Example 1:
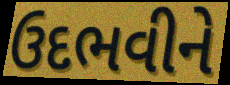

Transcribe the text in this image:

ઉદભવીને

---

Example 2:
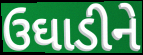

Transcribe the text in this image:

ઉઘાડીને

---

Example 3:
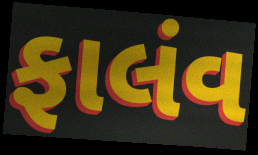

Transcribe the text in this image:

ફાલંવ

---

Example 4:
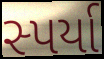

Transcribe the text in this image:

સ્પર્યા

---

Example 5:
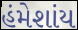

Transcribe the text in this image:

હંમેશાંય